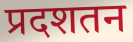
प्रदशतन